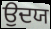
ਉਦਯ